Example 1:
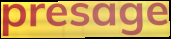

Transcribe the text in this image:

presage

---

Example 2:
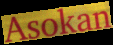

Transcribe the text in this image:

Asokan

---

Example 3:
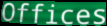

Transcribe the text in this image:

Offices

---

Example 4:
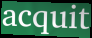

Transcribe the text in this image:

acquit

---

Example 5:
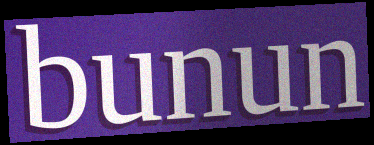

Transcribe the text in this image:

bunun